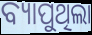
ବ୍ୟାପୁଥିଲା